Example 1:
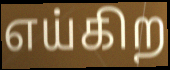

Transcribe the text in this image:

எய்கிற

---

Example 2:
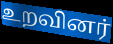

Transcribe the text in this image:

உறவினர்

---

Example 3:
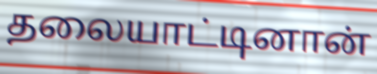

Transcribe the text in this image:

தலையாட்டினான்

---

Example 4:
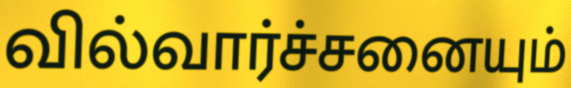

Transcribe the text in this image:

வில்வார்ச்சனையும்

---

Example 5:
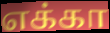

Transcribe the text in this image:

எக்கா